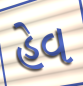
હેવ